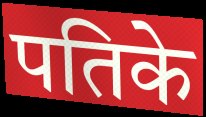
पतिके